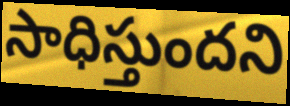
సాధిస్తుందని